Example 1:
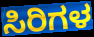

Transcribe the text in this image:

ಸಿರಿಗಳ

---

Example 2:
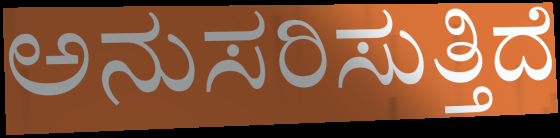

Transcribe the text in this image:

ಅನುಸರಿಸುತ್ತಿದೆ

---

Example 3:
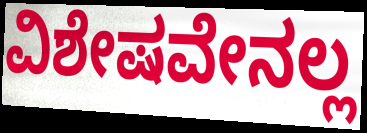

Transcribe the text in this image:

ವಿಶೇಷವೇನಲ್ಲ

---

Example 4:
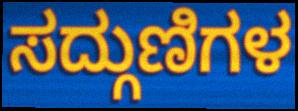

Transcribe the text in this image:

ಸದ್ಗುಣಿಗಳ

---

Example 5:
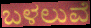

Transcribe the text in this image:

ಬಳಲುವೆ